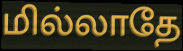
மில்லாதே